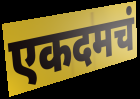
एकदमचं